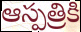
ఆస్పత్రికి